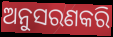
ଅନୁସରଣକରି